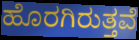
ಹೊರಗಿರುತ್ತವೆ